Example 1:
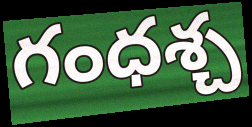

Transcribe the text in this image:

గంధశ్చ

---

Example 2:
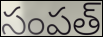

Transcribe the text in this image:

సంపత్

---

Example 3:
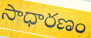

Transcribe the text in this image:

సాధారణం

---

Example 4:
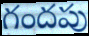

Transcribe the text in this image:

గందపు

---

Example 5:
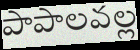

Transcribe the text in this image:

పాపాలవల్ల